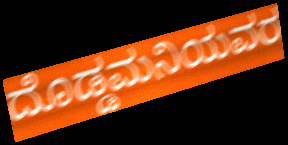
ದೊಡ್ಡಮನಿಯವರ